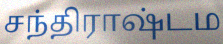
சந்திராஷ்டம